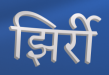
झिर्री